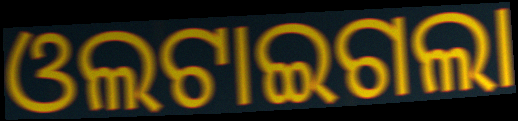
ଓଲଟାଇଗଲା